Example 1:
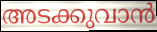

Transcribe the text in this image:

അടക്കുവാൻ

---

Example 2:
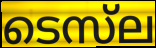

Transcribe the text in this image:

ടെസ്‌ല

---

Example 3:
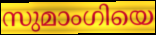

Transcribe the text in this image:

സുമാംഗിയെ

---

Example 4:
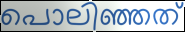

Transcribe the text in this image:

പൊലിഞ്ഞത്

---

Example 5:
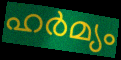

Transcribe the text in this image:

ഹർമ്യം